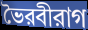
ভৈরবীরাগ